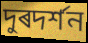
দুৰদৰ্শন